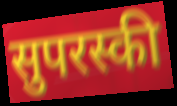
सुपरस्की